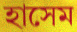
হাসেম